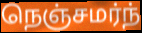
நெஞ்சமர்ந்